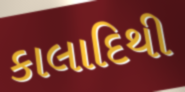
કાલાદિથી